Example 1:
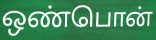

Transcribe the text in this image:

ஒண்பொன்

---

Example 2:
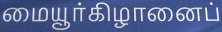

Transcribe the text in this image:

மையூர்கிழானைப்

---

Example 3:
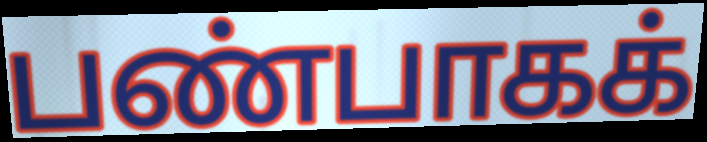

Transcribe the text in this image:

பண்பாகக்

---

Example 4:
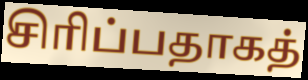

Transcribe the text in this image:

சிரிப்பதாகத்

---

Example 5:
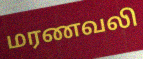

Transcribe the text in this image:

மரணவலி